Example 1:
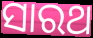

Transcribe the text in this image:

ସାରଥ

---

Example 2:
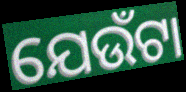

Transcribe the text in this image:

ଯେଉଁଟା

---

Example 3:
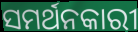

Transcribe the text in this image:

ସମର୍ଥନକାରୀ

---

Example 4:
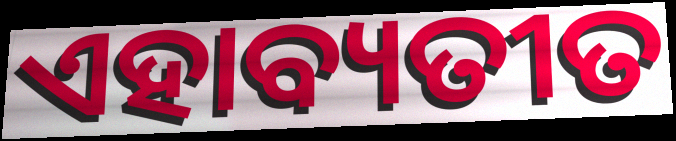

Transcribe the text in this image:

ଏହାବ୍ୟତୀତ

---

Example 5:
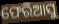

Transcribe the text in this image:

ଫେରିଆସୁ